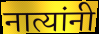
नात्यांनी